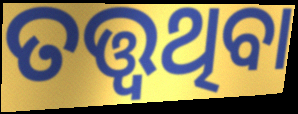
ତତ୍ତ୍ୱଥିବା